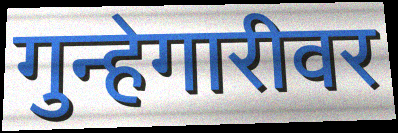
गुन्हेगारीवर